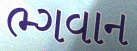
ભ્ગવાન